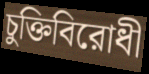
চুক্তিবিরোধী